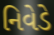
નિવેડે